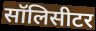
सॉलिसीटर